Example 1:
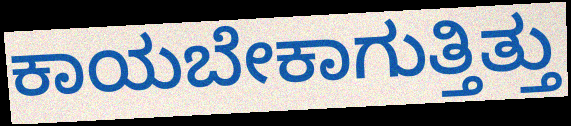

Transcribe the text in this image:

ಕಾಯಬೇಕಾಗುತ್ತಿತ್ತು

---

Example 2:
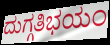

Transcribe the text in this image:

ದುಗ್ಗತಿಭಯಂ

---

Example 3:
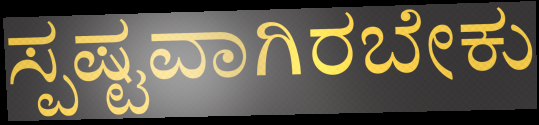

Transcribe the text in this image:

ಸ್ಪಷ್ಟವಾಗಿರಬೇಕು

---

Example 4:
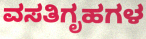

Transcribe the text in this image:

ವಸತಿಗೃಹಗಳ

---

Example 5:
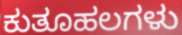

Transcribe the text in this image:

ಕುತೂಹಲಗಳು